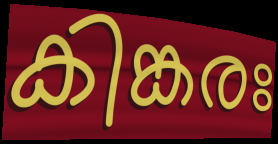
കിങ്കരഃ